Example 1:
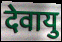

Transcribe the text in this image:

देवायु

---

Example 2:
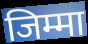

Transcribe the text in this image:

जिम्‍मा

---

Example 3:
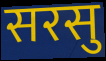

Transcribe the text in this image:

सरसु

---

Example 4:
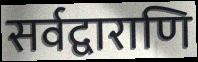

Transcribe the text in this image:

सर्वद्वाराणि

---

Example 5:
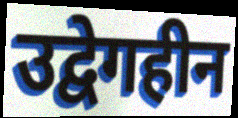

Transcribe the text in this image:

उद्वेगहीन